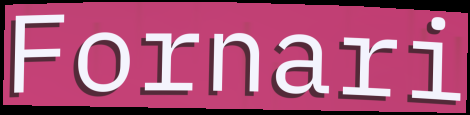
Fornari